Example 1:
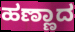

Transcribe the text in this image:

ಹಣ್ಣಾದ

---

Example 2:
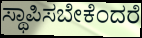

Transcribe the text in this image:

ಸ್ಥಾಪಿಸಬೇಕೆಂದರೆ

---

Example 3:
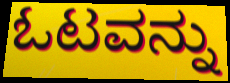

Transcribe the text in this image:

ಓಟವನ್ನು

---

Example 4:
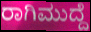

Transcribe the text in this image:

ರಾಗಿಮುದ್ದೆ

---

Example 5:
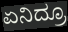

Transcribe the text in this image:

ಏನಿದ್ರೂ